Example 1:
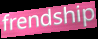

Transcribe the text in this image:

frendship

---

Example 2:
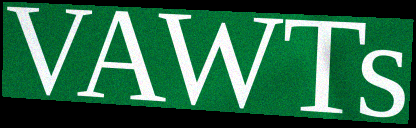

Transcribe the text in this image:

VAWTs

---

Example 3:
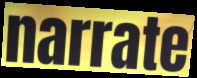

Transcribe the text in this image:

narrate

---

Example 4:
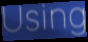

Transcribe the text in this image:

Using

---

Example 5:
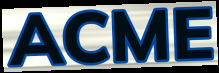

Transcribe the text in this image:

ACME